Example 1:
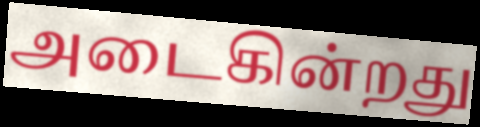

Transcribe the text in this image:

அடைகின்றது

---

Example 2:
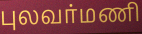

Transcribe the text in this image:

புலவர்மணி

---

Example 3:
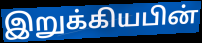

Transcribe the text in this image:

இறுக்கியபின்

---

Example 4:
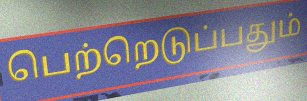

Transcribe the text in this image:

பெற்றெடுப்பதும்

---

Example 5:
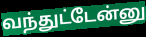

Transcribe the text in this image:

வந்துட்டேன்னு